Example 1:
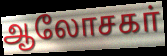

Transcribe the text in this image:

ஆலோசகர்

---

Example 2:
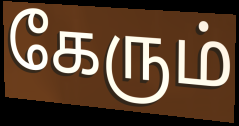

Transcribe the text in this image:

கேரும்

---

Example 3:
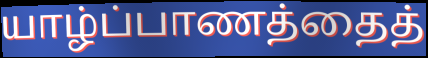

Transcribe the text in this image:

யாழ்ப்பாணத்தைத்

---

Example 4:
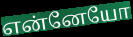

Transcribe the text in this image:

என்னேயோ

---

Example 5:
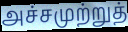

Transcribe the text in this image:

அச்சமுற்றுத்